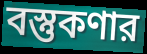
বস্তুকণার